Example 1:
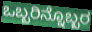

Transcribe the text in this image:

ಒಬ್ಬರಿನ್ನೊಬ್ಬರ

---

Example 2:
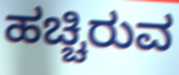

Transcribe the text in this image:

ಹಚ್ಚಿರುವ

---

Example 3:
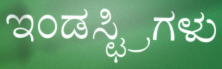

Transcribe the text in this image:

ಇಂಡಸ್ಟ್ರಿಗಳು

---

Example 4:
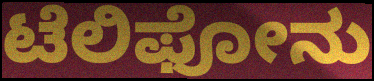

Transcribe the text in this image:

ಟೆಲಿಫೋನು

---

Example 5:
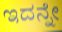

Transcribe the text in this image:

ಇದನ್ನೇ